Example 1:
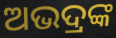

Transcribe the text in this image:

ଅଭଦ୍ରଙ୍କ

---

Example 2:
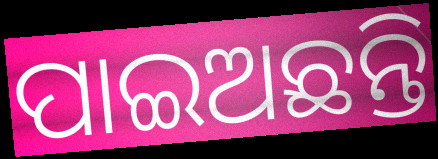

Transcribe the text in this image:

ପାଇଅଛନ୍ତି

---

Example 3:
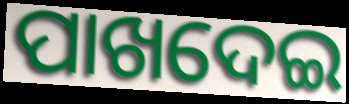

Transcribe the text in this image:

ପାଖଦେଇ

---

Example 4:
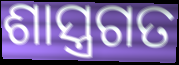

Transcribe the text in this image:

ଶାସ୍ତ୍ରଗତ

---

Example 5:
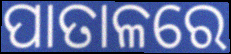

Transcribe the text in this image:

ପାତାଳରେ